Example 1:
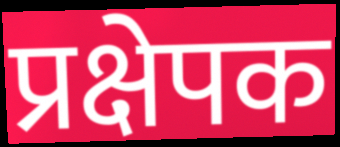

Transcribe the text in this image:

प्रक्षेपक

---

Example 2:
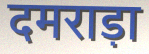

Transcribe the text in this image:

दमराड़ा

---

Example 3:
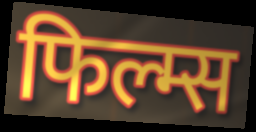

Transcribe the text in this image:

फिल्म्स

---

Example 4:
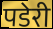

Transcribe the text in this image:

पडेरी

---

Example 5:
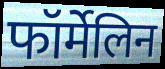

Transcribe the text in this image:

फॉर्मेलिन